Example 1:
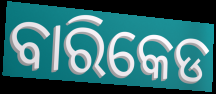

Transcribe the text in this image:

ବାରିକେଡ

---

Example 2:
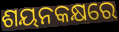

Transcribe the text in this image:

ଶୟନକକ୍ଷରେ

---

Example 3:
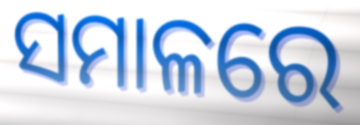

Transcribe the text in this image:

ସମାଳରେ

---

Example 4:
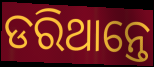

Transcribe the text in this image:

ଡରିଥାନ୍ତେ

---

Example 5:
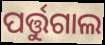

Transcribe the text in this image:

ପର୍ତ୍ତୁଗାଲ